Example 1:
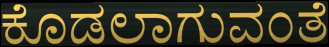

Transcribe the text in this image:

ಕೊಡಲಾಗುವಂತೆ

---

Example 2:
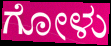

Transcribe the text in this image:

ಗೋಳು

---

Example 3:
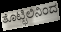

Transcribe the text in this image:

ತೊಟ್ಟಿಲಿನಿಂದ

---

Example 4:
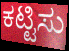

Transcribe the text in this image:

ಕಟ್ಟಿಸು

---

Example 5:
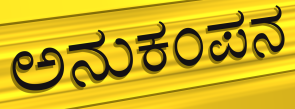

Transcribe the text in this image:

ಅನುಕಂಪನ